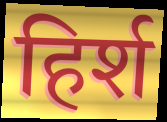
हिर्श